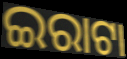
ଇରାଟା